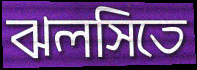
ঝলসিতে